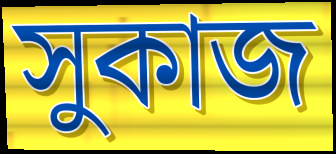
সুকাজ